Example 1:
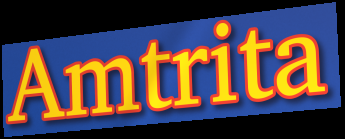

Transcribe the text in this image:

Amtrita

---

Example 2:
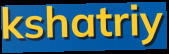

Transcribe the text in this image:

kshatriy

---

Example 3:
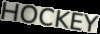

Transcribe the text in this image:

HOCKEY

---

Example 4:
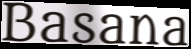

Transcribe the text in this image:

Basana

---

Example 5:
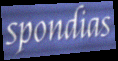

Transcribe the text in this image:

spondias